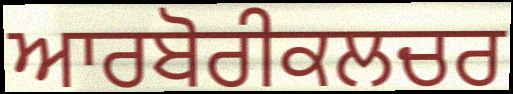
ਆਰਬੋਰੀਕਲਚਰ